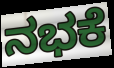
ನಭಕೆ